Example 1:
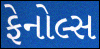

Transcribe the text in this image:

ફેનોલ્સ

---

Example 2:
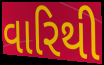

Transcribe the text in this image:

વારિથી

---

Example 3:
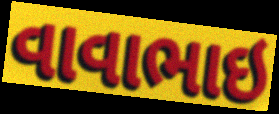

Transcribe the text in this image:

વાવાભાઇ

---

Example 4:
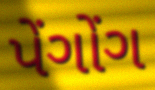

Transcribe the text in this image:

પેંગોંગ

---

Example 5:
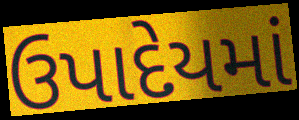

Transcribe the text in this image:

ઉપાદેયમાં